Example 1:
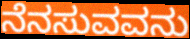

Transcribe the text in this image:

ನೆನಸುವವನು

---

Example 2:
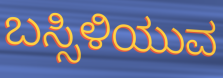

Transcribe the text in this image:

ಬಸ್ಸಿಳಿಯುವ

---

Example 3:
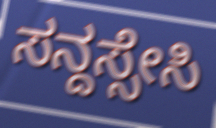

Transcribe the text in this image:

ಸನ್ದಸ್ಸೇಸಿ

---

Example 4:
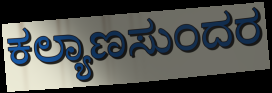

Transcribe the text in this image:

ಕಲ್ಯಾಣಸುಂದರ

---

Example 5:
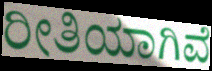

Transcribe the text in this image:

ರೀತಿಯಾಗಿವೆ